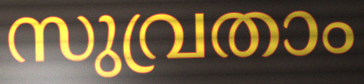
സുവ്രതാം